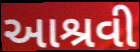
આશ્રવી